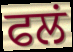
ਫਲਂ